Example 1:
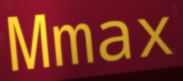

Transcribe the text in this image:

Mmax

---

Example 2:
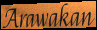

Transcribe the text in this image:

Arawakan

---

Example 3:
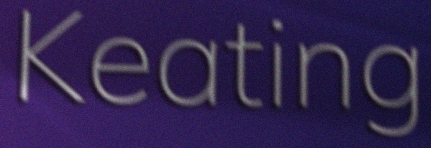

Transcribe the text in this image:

Keating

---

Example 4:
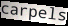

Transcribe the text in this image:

carpels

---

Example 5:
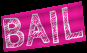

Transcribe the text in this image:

BAIL